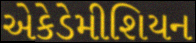
એકેડેમીશિયન